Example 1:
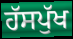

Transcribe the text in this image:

ਹੱਸਪੁੱਖ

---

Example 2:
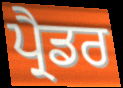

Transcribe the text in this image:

ਪ੍ਰੈਡਰ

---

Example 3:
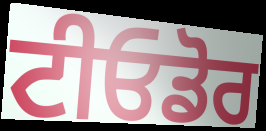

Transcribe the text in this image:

ਟੀਓਡੋਰ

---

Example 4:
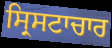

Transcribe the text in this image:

ਸ੍ਰਿਸਟਾਚਾਰ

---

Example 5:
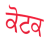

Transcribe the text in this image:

ਕੋਟਕ